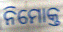
ନିମୋକ୍ତ